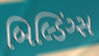
બિલ્ડિંગ્સ